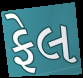
ફેલ